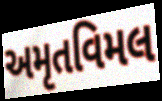
અમૃતવિમલ